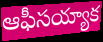
ఆఫీసయ్యాక